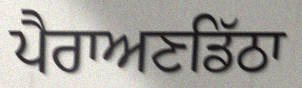
ਪੈਰਾਅਣਡਿੱਠਾ